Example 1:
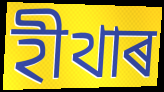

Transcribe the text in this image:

হীথাৰ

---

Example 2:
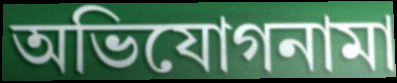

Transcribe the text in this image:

অভিযোগনামা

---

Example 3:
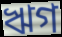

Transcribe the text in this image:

ঋগ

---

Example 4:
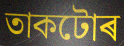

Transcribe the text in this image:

তাকটোৰ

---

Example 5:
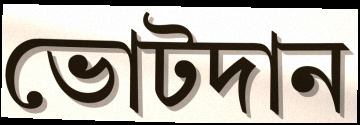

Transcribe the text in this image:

ভোটদান